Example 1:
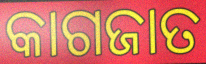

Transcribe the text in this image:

କାଗଜାତ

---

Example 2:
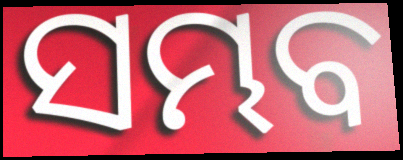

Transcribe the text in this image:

ସମ୍ଭବ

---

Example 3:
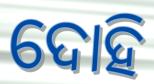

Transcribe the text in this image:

ଦୋହି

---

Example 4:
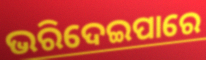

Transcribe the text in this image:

ଭରିଦେଇପାରେ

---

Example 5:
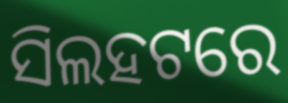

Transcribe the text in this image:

ସିଲହଟରେ